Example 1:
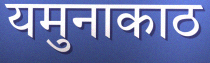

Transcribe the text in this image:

यमुनाकाठ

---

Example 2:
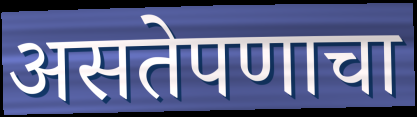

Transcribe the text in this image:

असतेपणाचा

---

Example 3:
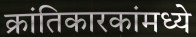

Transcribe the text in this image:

क्रांतिकारकांमध्ये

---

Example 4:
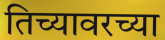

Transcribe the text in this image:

तिच्यावरच्या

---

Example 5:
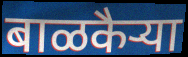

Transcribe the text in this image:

बाळकैऱ्या